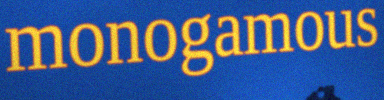
monogamous